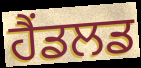
ਹੈਂਡਲਡ